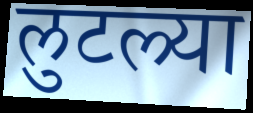
लुटल्या